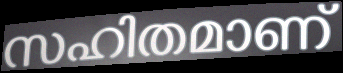
സഹിതമാണ്